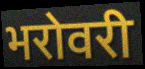
भरोवरी